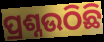
ପ୍ରଶ୍ନଉଠିଛି